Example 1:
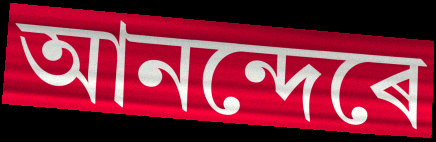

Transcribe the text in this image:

আনন্দেৰে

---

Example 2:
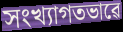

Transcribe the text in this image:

সংখ্যাগতভাৱে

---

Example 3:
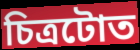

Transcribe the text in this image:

চিত্ৰটোত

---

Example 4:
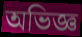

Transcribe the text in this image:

অভিজ্ঞ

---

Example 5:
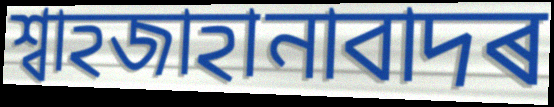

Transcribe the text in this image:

শ্বাহজাহানাবাদৰ